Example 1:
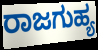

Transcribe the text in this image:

ರಾಜಗುಹ್ಯ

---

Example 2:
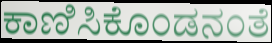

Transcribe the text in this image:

ಕಾಣಿಸಿಕೊಂಡನಂತೆ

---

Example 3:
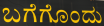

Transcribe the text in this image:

ಬಗೆಗೊಂದು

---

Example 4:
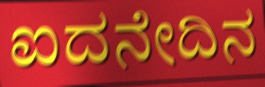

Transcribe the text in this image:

ಐದನೇದಿನ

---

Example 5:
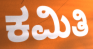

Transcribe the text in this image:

ಕಮಿತಿ